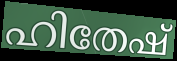
ഹിതേഷ്